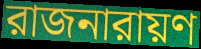
রাজনারায়ণ